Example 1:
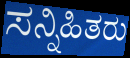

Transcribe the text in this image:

ಸನ್ನಿಹಿತರು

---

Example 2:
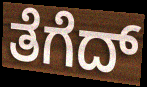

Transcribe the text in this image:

ತೆಗೆದ್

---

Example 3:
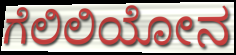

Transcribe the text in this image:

ಗೆಲಿಲಿಯೋನ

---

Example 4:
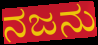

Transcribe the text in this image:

ನಜನು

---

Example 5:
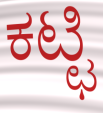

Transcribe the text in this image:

ಕಟ್ಟಿ